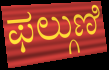
ಫಲ್ಗುಣಿ